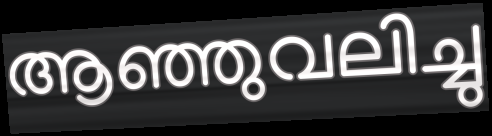
ആഞ്ഞുവലിച്ചു